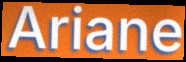
Ariane